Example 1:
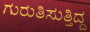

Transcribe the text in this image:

ಗುರುತಿಸುತ್ತಿದ್ದ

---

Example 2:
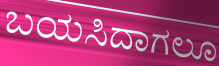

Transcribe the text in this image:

ಬಯಸಿದಾಗಲೂ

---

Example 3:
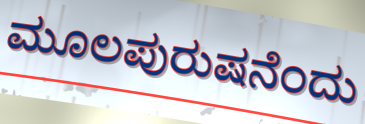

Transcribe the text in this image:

ಮೂಲಪುರುಷನೆಂದು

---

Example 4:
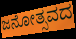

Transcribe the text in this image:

ಜನೋತ್ಸವದ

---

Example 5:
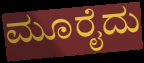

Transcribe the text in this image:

ಮೂರೈದು